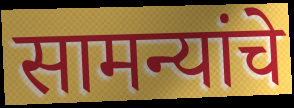
सामन्यांचे